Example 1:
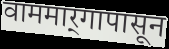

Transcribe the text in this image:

वाममार्गापासून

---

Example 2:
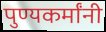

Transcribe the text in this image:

पुण्यकर्मांनी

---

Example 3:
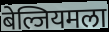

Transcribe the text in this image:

बेल्जियमला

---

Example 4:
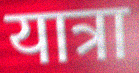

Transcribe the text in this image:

यात्रा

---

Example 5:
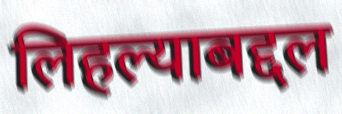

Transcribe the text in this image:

लिहल्याबद्दल